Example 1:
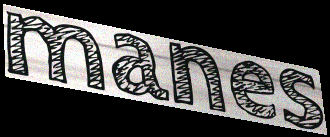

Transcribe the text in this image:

manes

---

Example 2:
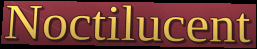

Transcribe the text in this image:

Noctilucent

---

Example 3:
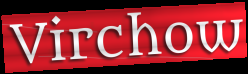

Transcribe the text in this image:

Virchow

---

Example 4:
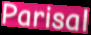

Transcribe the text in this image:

Parisal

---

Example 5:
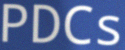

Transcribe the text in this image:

PDCs